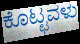
ಕೊಟ್ಟವಳು